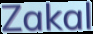
Zakal